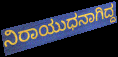
ನಿರಾಯುಧನಾಗಿದ್ದ